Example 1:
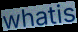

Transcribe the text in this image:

whatis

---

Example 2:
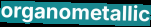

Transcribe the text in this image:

organometallic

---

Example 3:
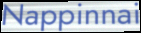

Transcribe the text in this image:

Nappinnai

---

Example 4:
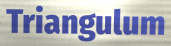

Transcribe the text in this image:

Triangulum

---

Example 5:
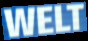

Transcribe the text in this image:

WELT